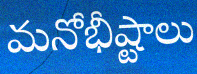
మనోభీష్టాలు